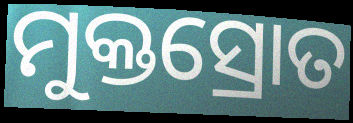
ମୁକ୍ତସ୍ରୋତ